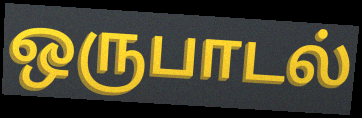
ஒருபாடல்